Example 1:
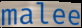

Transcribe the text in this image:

malee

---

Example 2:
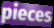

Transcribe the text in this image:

pieces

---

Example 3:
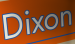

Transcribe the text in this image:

Dixon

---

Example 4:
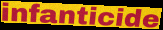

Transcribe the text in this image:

infanticide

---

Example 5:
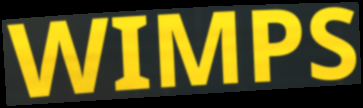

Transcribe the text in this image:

WIMPS